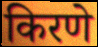
किरणे